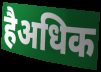
हैअधिक